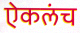
ऐकलंच